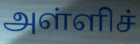
அள்ளிச்